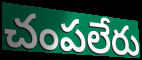
చంపలేరు